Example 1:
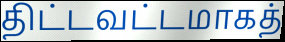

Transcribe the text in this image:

திட்டவட்டமாகத்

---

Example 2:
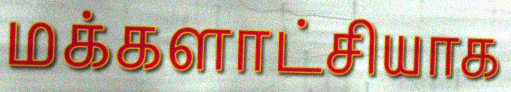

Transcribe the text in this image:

மக்களாட்சியாக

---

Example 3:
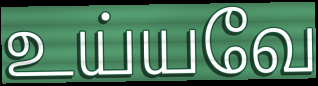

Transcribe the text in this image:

உய்யவே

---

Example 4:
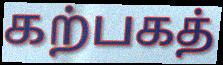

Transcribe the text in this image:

கற்பகத்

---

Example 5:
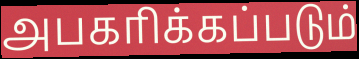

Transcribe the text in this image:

அபகரிக்கப்படும்